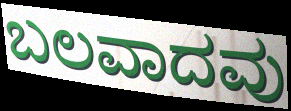
ಬಲವಾದವು